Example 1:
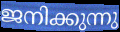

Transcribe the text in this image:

ജനിക്കുന്നു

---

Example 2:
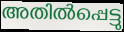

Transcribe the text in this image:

അതിൽപ്പെട്ടു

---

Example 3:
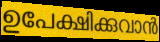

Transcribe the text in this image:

ഉപേക്ഷിക്കുവാൻ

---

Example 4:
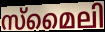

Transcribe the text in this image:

സ്മൈലി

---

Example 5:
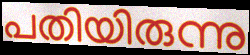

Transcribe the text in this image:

പതിയിരുന്നു